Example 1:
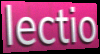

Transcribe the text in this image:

lectio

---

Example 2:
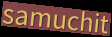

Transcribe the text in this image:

samuchit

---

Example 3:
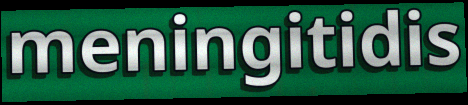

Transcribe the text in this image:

meningitidis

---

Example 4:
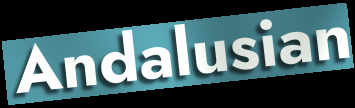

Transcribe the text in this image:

Andalusian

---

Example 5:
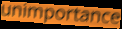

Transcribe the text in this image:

unimportance